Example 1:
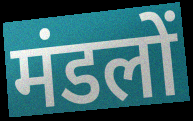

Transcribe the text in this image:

मंडलों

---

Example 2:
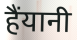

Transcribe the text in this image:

हैंयानी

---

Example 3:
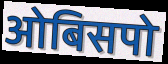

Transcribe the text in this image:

ओबिसपो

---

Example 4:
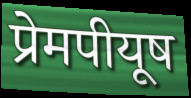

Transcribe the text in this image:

प्रेमपीयूष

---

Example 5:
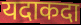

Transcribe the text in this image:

यदाकदा